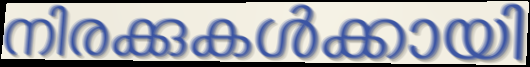
നിരക്കുകൾക്കായി